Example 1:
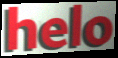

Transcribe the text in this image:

helo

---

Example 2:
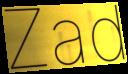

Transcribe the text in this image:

Zad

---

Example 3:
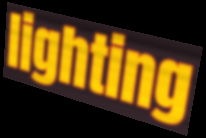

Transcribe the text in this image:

lighting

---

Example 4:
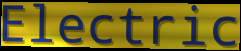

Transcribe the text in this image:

Electric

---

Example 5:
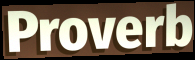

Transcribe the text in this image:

Proverb